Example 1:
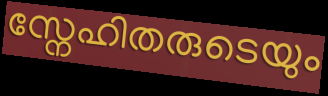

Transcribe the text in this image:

സ്നേഹിതരുടെയും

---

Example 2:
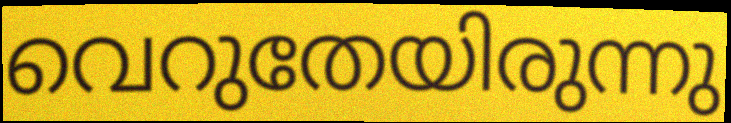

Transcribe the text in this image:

വെറുതേയിരുന്നു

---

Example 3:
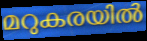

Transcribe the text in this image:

മറുകരയിൽ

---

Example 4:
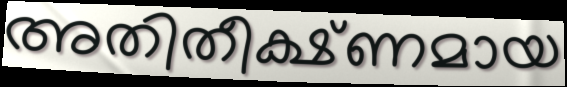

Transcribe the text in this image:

അതിതീക്ഷ്ണമായ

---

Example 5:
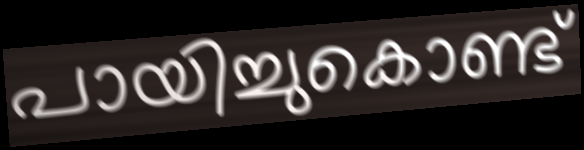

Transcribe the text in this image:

പായിച്ചുകൊണ്ട്